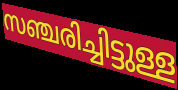
സഞ്ചരിച്ചിട്ടുള്ള